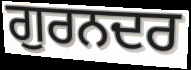
ਗੁਰਨਦਰ